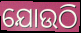
ଯୋଉଠି